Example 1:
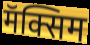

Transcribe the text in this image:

मॅक्सिम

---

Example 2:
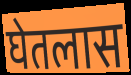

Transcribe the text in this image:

घेतलास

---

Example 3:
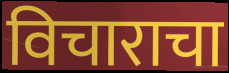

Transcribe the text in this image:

विचाराचा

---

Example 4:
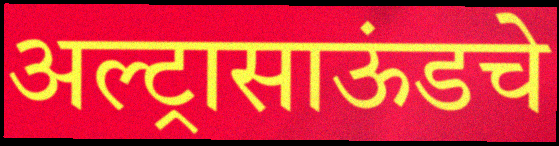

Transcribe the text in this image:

अल्ट्रासाऊंडचे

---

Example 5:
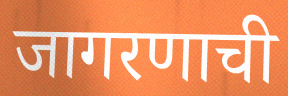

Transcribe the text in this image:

जागरणाची